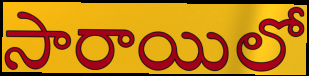
సారాయిలో